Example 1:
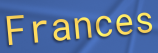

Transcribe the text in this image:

Frances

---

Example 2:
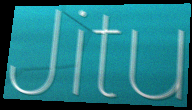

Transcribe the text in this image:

Jitu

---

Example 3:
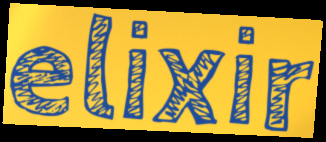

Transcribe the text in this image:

elixir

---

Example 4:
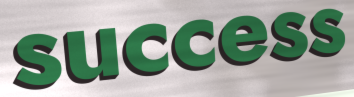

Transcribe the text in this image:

success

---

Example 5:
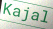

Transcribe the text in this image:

Kajal